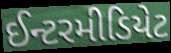
ઈન્ટરમીડિયેટ